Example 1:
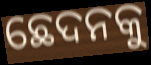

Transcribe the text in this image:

ଛେଦନକୁ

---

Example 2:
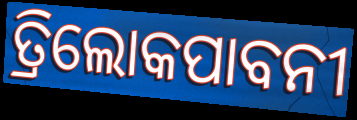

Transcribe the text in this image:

ତ୍ରିଲୋକପାବନୀ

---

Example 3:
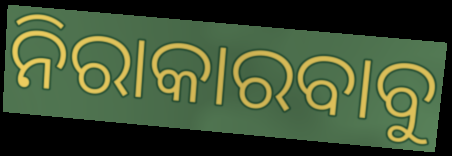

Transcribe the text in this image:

ନିରାକାରବାବୁ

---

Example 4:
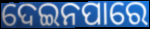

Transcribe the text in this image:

ଦେଇନପାରେ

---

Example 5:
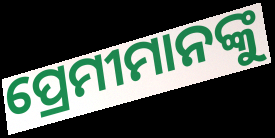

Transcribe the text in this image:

ପ୍ରେମୀମାନଙ୍କୁ